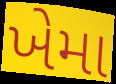
ખેમા